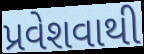
પ્રવેશવાથી